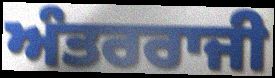
ਅੰਤਰਰਾਜੀ